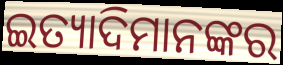
ଇତ୍ୟାଦିମାନଙ୍କର